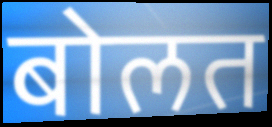
बोलत